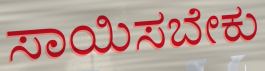
ಸಾಯಿಸಬೇಕು